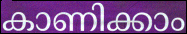
കാണിക്കാം